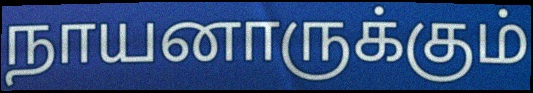
நாயனாருக்கும்